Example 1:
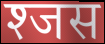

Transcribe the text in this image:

श्जस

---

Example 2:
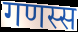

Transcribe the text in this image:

गणस्स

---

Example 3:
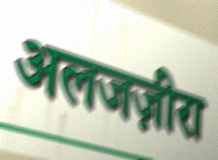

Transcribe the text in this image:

अलजज़ीरा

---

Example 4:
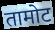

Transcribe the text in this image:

तामोट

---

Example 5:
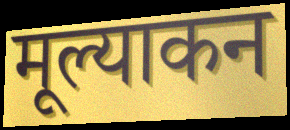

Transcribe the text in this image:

मूल्याकन